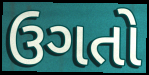
ઉગતો